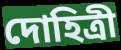
দোহিত্রী